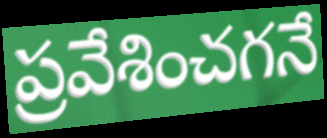
ప్రవేశించగనే